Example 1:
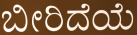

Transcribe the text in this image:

ಬೀರಿದೆಯೆ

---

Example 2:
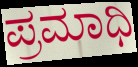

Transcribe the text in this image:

ಪ್ರಮಾಧಿ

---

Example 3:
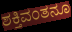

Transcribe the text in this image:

ಶಕ್ತಿವಂತನೂ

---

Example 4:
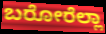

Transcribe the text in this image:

ಬರೋರೆಲ್ಲಾ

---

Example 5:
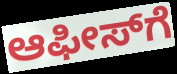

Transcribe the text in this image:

ಆಫೀಸ್‍ಗೆ